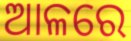
ଆଳରେ